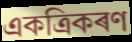
একত্ৰিকৰণ